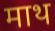
माथ